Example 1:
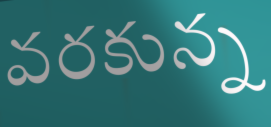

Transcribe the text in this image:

వరకున్న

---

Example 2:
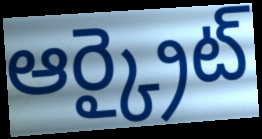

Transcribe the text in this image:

ఆర్క్రైట్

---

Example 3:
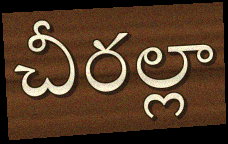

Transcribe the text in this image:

చీరల్లా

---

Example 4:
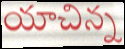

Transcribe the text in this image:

యాచిన్న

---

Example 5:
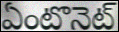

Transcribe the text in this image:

ఏంటొనెట్